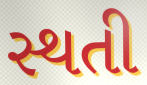
સ્થતી